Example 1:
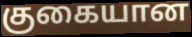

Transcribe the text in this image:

குகையான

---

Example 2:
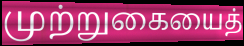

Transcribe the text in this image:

முற்றுகையைத்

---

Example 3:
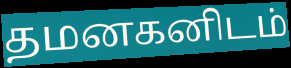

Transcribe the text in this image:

தமனகனிடம்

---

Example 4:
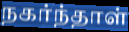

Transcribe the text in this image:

நகர்ந்தாள்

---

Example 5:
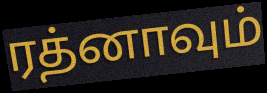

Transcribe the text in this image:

ரத்னாவும்